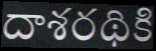
దాశరథికి